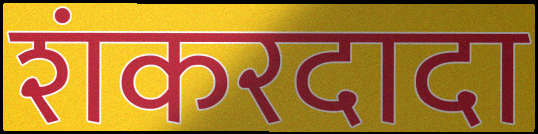
शंकरदादा